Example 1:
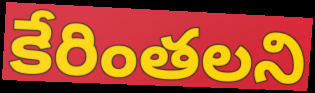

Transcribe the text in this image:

కేరింతలని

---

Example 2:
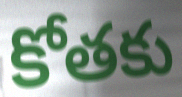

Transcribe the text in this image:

కోతకు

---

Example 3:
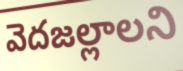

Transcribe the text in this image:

వెదజల్లాలని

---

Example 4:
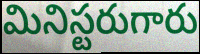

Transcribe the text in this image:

మినిస్టరుగారు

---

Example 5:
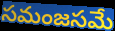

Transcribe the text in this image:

సమంజసమే